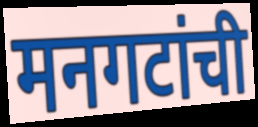
मनगटांची